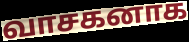
வாசகனாக